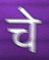
चे